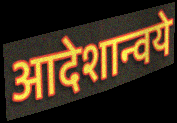
आदेशान्वये